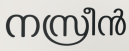
നസ്രീൻ